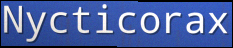
Nycticorax